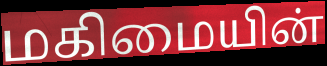
மகிமையின்